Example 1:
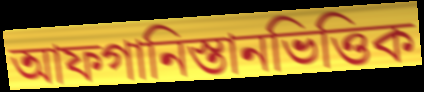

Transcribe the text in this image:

আফগানিস্তানভিত্তিক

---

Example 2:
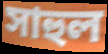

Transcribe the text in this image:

সাহুল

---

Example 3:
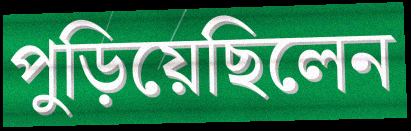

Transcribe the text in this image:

পুড়িয়েছিলেন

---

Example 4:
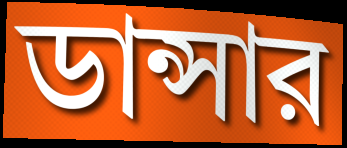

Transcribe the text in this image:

ডান্সার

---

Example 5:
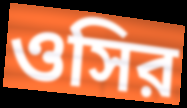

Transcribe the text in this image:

ওসির